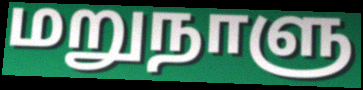
மறுநாளு